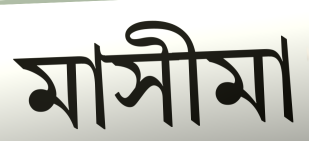
মাসীমা